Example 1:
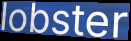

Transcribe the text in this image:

lobster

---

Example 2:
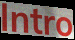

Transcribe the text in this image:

Intro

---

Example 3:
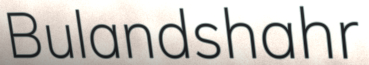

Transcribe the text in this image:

Bulandshahr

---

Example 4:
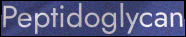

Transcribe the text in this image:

Peptidoglycan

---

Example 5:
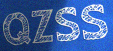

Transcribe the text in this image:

QZSS